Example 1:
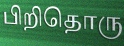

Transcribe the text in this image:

பிறிதொரு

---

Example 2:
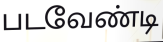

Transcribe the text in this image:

படவேண்டி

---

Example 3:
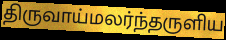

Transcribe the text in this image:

திருவாய்மலர்ந்தருளிய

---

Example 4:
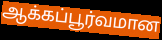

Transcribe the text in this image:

ஆக்கப்பூர்வமான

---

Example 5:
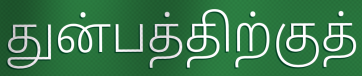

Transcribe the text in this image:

துன்பத்திற்குத்